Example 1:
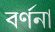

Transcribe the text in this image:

বৰ্ণনা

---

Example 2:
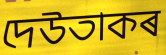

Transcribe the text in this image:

দেউতাকৰ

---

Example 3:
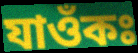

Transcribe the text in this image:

যাওঁকঃ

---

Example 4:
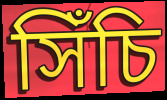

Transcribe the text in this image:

সিঁচি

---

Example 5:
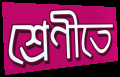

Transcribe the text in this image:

শ্ৰেণীতে